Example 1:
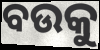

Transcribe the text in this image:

ବଉକୁ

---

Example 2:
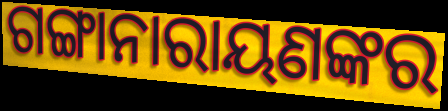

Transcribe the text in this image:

ଗଙ୍ଗାନାରାୟଣଙ୍କର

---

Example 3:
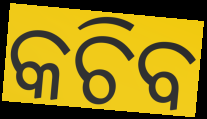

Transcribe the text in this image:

କଚିବ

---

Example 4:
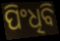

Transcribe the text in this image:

ପିଂଧିବି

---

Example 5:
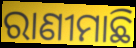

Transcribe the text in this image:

ରାଣୀମାଛି